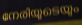
നേരിയുടെയും